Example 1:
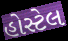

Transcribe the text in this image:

હોસ્ટેલ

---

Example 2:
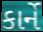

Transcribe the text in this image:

કાર્ને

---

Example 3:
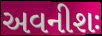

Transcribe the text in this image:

અવનીશઃ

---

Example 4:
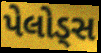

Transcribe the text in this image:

પેલોડ્સ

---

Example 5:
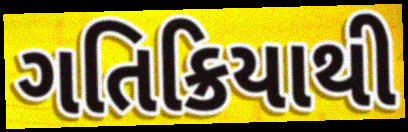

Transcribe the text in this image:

ગતિક્રિયાથી